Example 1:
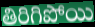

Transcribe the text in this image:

తిరిగిపోయి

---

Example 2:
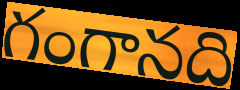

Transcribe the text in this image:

గంగానది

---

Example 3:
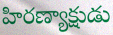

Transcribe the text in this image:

హిరణ్యాక్షుడు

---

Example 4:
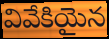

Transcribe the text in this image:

వివేకియైన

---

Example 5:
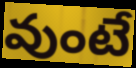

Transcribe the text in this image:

వుంటే